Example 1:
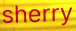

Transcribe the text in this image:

sherry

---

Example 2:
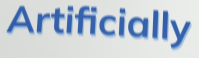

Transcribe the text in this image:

Artificially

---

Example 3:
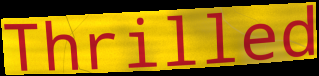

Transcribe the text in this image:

Thrilled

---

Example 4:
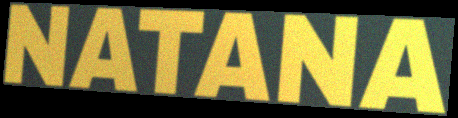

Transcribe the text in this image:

NATANA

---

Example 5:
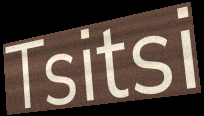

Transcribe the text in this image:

Tsitsi